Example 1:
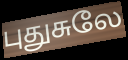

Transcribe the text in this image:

புதுசுலே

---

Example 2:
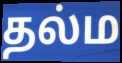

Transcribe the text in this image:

தல்ம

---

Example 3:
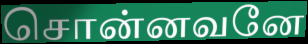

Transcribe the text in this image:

சொன்னவனே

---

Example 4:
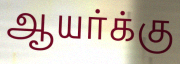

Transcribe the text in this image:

ஆயர்க்கு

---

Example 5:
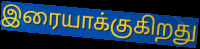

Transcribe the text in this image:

இரையாக்குகிறது